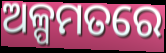
ଅଳ୍ପମତରେ